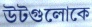
উটগুলোকে